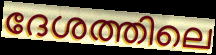
ദേശത്തിലെ